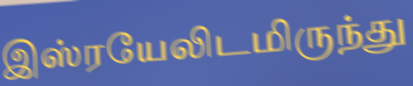
இஸ்ரயேலிடமிருந்து